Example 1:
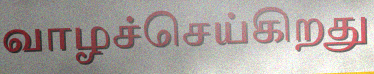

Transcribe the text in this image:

வாழச்செய்கிறது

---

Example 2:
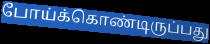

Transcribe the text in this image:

போய்க்கொண்டிருப்பது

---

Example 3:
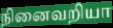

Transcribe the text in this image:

நினைவறியா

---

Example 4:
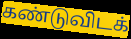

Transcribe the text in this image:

கண்டுவிடக்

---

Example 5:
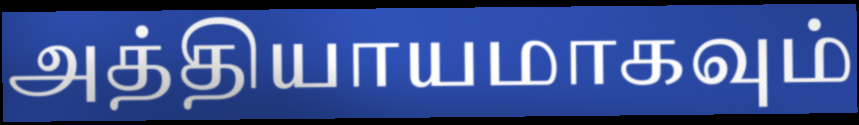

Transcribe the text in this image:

அத்தியாயமாகவும்